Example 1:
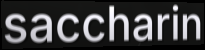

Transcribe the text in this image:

saccharin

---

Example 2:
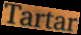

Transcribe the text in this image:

Tartar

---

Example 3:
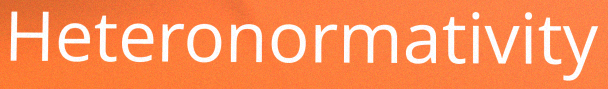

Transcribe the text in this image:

Heteronormativity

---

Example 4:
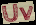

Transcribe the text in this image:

Uv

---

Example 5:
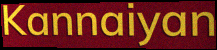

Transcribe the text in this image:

Kannaiyan